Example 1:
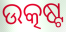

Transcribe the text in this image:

ଉତ୍କଷ୍ଟ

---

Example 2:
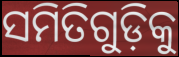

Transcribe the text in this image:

ସମିତିଗୁଡ଼ିକୁ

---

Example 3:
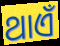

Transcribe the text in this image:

ଥାଏଁ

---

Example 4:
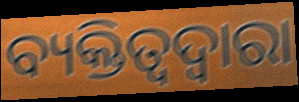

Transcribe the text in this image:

ବ୍ୟକ୍ତିତ୍ୱଦ୍ୱାରା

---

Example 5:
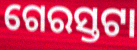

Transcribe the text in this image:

ଗେରସ୍ତଟା